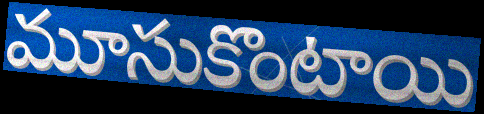
మూసుకొంటాయి